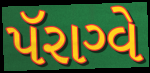
પૅરાગ્વે